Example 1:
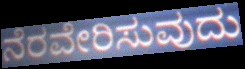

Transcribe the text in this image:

ನೆರವೇರಿಸುವುದು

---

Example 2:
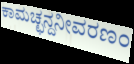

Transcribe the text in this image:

ಕಾಮಚ್ಛನ್ದನೀವರಣಂ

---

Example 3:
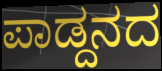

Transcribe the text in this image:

ಪಾಡ್ದನದ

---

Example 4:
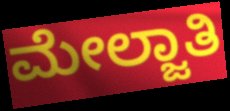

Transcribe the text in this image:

ಮೇಲ್ಜಾತಿ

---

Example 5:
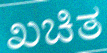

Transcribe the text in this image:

ಖಚಿತ